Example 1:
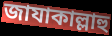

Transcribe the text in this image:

জাযাকাল্লাহু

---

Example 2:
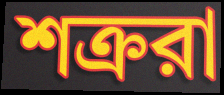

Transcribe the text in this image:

শক্ররা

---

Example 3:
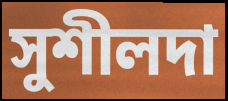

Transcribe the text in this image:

সুশীলদা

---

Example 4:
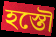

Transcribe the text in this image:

হস্তৌ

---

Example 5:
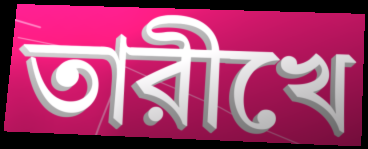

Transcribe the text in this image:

তারীখে